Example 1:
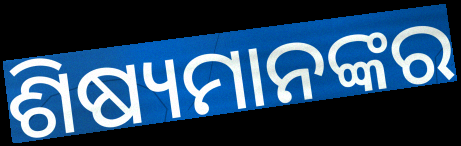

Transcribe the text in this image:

ଶିଷ୍ୟମାନଙ୍କର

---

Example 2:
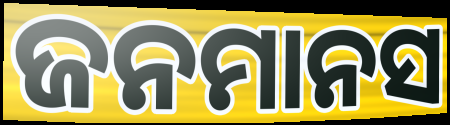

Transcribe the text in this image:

ଜନମାନସ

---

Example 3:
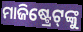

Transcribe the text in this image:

ମାଜିଷ୍ଟ୍ରେଟ୍‌ଙ୍କୁ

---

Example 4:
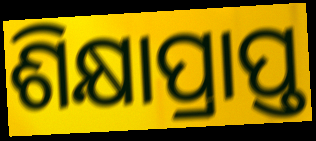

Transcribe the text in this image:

ଶିକ୍ଷାପ୍ରାପ୍ତ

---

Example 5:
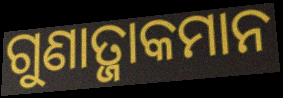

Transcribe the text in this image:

ଗୁଣାତ୍ଜାକମାନ